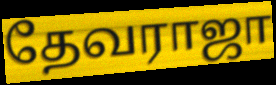
தேவராஜா